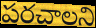
పరచాలని